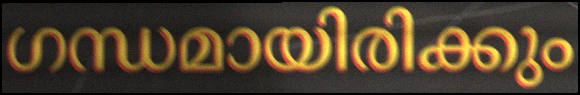
ഗന്ധമായിരിക്കും